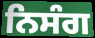
ਨਿਸੰਗ